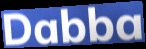
Dabba